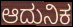
ಆದುನಿಕ